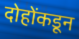
दोहोंकडून